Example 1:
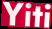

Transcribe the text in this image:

Yiti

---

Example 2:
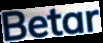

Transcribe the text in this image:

Betar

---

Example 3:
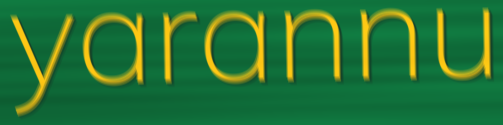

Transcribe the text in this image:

yarannu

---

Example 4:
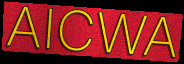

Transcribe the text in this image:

AICWA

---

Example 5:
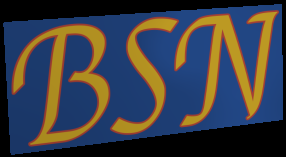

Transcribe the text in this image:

BSN